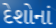
દેશોનાં